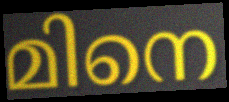
മിനെ